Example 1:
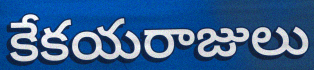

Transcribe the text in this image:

కేకయరాజులు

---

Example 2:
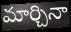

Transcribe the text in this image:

మార్చినా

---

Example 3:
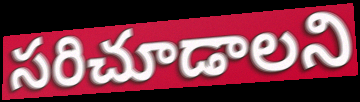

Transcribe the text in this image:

సరిచూడాలని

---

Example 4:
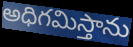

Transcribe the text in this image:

అధిగమిస్తాను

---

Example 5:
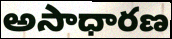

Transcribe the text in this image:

అసాధారణ